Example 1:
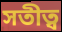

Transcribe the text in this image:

সতীত্ব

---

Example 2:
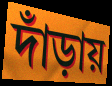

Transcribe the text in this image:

দাঁড়ায়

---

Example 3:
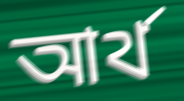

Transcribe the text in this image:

আৰ্থ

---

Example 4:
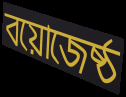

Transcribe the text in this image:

বয়োজেষ্ঠ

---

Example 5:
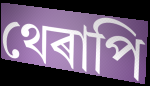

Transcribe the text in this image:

থেৰাপি